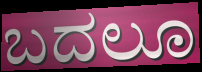
ಬದಲೂ